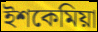
ইশকেমিয়া